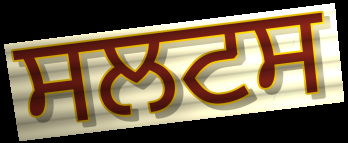
ਸਲਟਸ